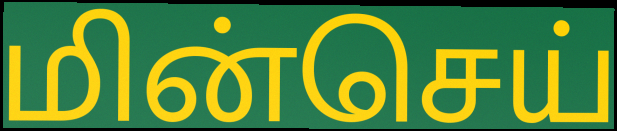
மின்செய்